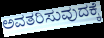
ಅವತರಿಸುವುದಕ್ಕೆ